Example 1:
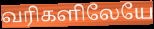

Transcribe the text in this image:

வரிகளிலேயே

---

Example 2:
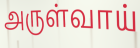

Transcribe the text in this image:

அருள்வாய்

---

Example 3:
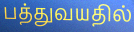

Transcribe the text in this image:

பத்துவயதில்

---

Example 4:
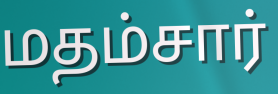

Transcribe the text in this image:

மதம்சார்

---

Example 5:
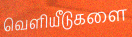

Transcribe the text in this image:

வெளியீடுகளை